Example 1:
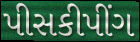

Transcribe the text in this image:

પીસકીપીંગ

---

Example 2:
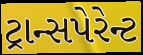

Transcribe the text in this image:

ટ્રાન્સપેરેન્ટ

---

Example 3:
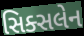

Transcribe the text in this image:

સિક્સલેન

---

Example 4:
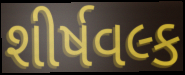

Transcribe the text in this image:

શીર્ષવલ્ક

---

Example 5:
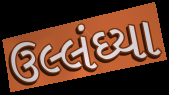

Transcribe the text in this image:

ઉલ્લંઘ્યા